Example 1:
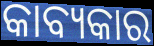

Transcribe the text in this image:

କାବ୍ୟକାର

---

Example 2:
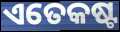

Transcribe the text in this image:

ଏତେକଷ୍ଟ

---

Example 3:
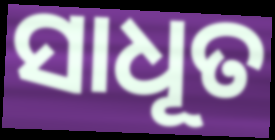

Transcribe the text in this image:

ସାଧୂତ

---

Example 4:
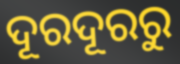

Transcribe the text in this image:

ଦୂରଦୂରରୁ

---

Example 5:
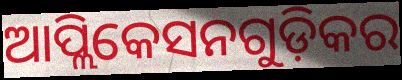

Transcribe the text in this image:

ଆପ୍ଲିକେସନଗୁଡ଼ିକର